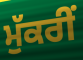
ਮੁੱਕਰੀਂ